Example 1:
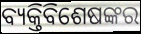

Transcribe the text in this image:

ବ୍ୟକ୍ତିବିଶେଷଙ୍କର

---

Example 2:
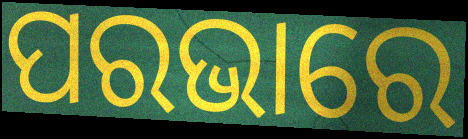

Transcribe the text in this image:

ପରଭାରେ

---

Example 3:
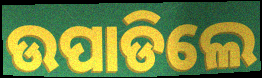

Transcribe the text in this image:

ଉପାଡିଲେ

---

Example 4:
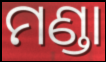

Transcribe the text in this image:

ମଣ୍ଡା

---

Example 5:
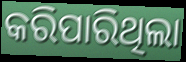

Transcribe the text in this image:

କରିପାରିଥିଲା